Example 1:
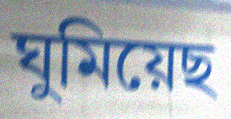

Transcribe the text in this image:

ঘুমিয়েছ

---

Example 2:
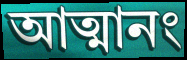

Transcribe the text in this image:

আত্মানং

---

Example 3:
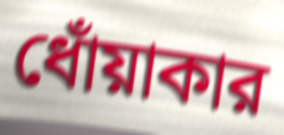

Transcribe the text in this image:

ধোঁয়াকার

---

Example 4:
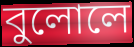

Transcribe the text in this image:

বুলোলে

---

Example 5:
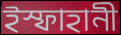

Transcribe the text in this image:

ইস্ফাহানী